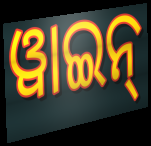
ୱାଇନ୍